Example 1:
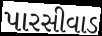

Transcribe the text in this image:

પારસીવાડ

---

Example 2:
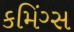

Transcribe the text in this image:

કમિંગ્સ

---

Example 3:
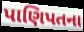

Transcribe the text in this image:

પાણિપતના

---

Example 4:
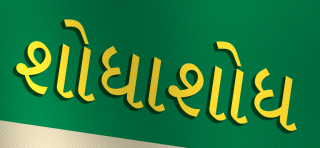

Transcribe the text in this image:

શોધાશોધ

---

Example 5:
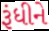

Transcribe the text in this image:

રૂંધીને